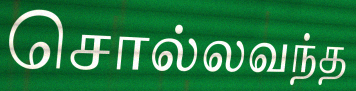
சொல்லவந்த